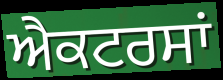
ਐਕਟਰਸਾਂ